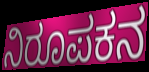
ನಿರೂಪಕನ